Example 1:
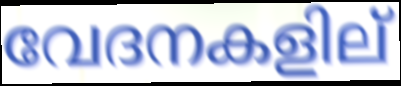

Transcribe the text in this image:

വേദനകളില്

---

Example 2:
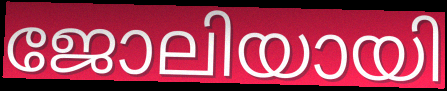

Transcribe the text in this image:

ജോലിയായി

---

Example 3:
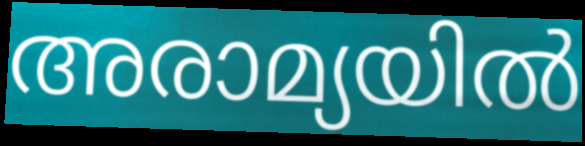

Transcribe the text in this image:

അരാമ്യയിൽ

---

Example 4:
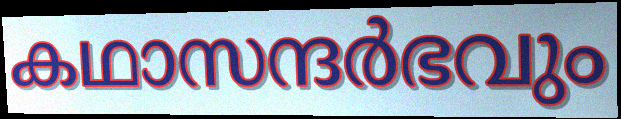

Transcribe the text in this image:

കഥാസന്ദർഭവും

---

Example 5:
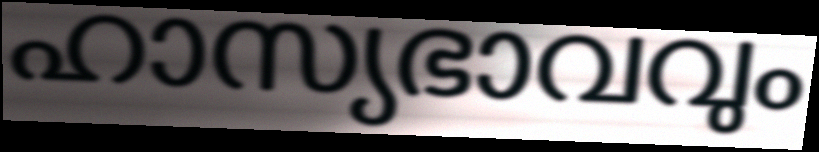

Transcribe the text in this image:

ഹാസ്യഭാവവും